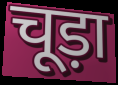
चूड़ा